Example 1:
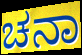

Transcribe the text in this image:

ಚನಾ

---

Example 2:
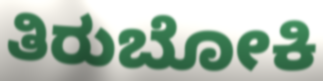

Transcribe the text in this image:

ತಿರುಬೋಕಿ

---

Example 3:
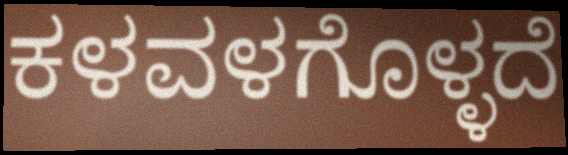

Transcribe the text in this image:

ಕಳವಳಗೊಳ್ಳದೆ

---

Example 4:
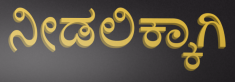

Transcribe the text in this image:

ನೀಡಲಿಕ್ಕಾಗಿ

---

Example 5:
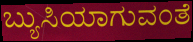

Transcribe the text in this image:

ಬ್ಯುಸಿಯಾಗುವಂತೆ